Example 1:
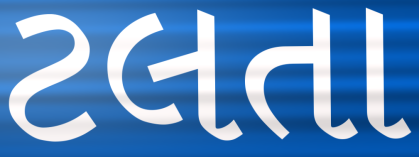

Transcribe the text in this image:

ટલતા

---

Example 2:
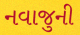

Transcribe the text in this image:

નવાજુની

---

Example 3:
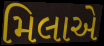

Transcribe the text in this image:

મિલાએ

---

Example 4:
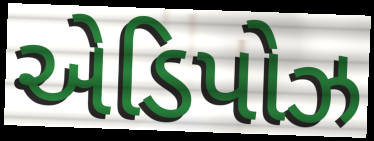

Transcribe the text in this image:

એડિપોઝ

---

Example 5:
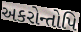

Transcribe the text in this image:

અકરોન્તોપિ